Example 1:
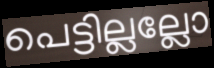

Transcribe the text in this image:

പെട്ടില്ലല്ലോ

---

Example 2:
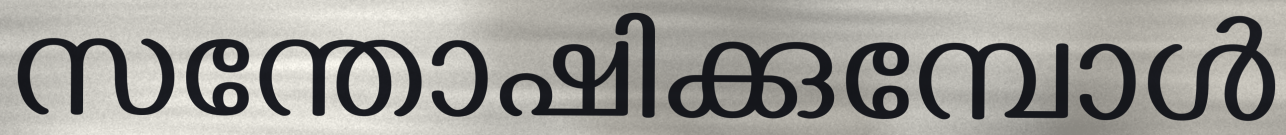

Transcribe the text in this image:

സന്തോഷിക്കുമ്പോൾ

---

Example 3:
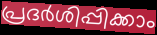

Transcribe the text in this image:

പ്രദർശിപ്പിക്കാം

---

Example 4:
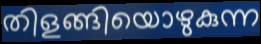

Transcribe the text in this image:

തിളങ്ങിയൊഴുകുന്ന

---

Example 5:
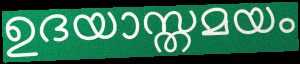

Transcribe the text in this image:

ഉദയാസ്തമയം